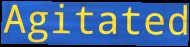
Agitated